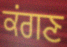
ਕਂਗਣ